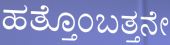
ಹತ್ತೊಂಬತ್ತನೇ